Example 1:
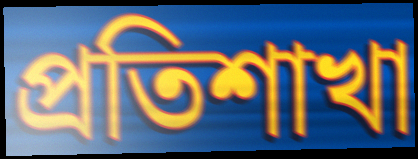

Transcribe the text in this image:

প্রতিশাখা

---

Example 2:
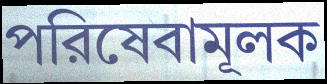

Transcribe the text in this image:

পরিষেবামূলক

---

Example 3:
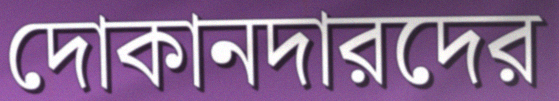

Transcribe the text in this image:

দোকানদারদের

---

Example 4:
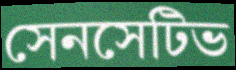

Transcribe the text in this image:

সেনসেটিভ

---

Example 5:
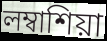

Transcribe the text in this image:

লম্বাশিয়া